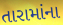
તારામાંના